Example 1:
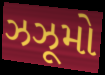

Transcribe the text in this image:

ઝઝૂમો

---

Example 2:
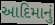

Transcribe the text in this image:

આદિમાનું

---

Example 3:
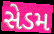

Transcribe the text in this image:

સેડમ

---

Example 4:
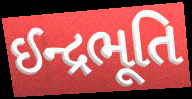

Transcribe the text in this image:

ઈન્દ્રભૂતિ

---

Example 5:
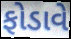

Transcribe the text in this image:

ફોડાવે